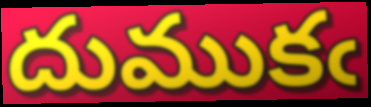
దుముకఁ